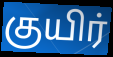
குயிர்